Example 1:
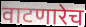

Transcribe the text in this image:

वाटणारेच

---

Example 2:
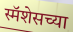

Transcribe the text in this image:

स्मॅशेसच्या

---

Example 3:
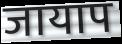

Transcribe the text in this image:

जायाप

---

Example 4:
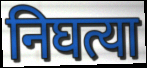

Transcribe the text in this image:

निघत्या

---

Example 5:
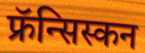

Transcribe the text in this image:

फ्रॅन्सिस्कन